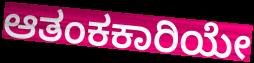
ಆತಂಕಕಾರಿಯೇ